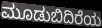
ಮೂಡುಬಿದಿರೆಯ